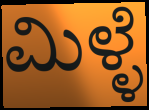
ಮಿಳ್ಳೆ